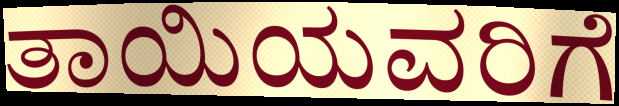
ತಾಯಿಯವರಿಗೆ